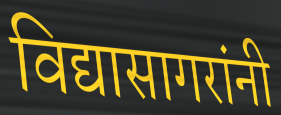
विद्यासागरांनी